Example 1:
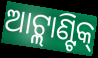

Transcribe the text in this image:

ଆଟ୍ଲାଣ୍ଟିକ୍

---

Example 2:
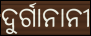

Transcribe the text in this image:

ଦୁର୍ଗାନାନୀ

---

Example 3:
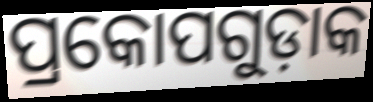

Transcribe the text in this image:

ପ୍ରକୋପଗୁଡ଼ାକ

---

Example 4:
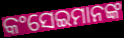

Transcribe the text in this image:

କଂସେଇମାନଙ୍କ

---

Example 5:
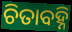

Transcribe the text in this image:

ଚିତାବହ୍ନି